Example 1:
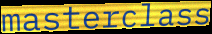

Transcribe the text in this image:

masterclass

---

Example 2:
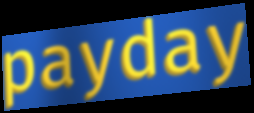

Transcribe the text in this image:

payday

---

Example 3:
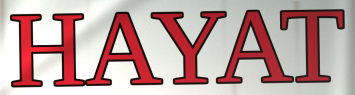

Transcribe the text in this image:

HAYAT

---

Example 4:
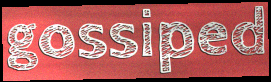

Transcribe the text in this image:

gossiped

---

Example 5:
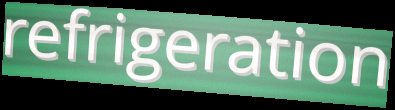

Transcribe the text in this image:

refrigeration